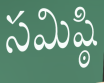
సమిష్ఠి